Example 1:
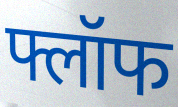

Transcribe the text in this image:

फ्लॉफ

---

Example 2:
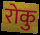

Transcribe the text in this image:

रोकु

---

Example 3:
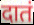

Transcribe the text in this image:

दातं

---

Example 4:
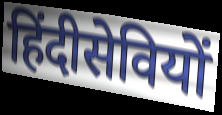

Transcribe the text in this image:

हिंदीसेवियों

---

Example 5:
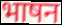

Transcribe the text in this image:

भाषन